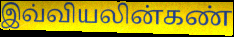
இவ்வியலின்கண்